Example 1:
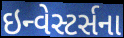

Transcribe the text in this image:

ઇન્વેસ્ટર્સના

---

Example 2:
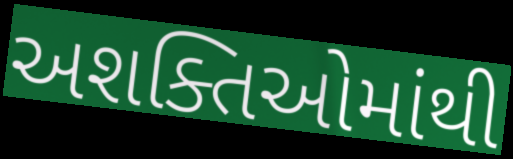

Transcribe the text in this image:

અશક્તિઓમાંથી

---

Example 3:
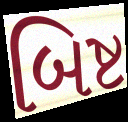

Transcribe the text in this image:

બિષ્ટ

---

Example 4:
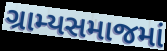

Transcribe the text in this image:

ગ્રામ્યસમાજમાં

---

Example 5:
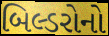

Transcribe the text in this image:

બિલ્ડરોનો